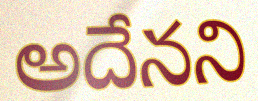
అదేనని